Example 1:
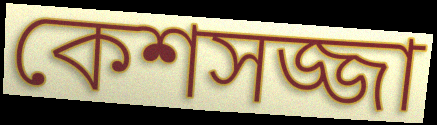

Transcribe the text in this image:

কেশসজ্জা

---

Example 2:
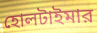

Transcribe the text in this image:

হোলটাইমার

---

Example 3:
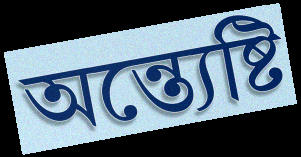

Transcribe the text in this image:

অন্ত্যেষ্টি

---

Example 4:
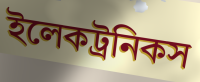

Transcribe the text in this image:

ইলেকট্রনিকস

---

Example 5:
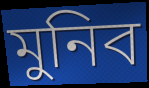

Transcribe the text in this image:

মুনিব